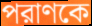
পরাণকে